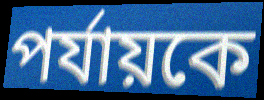
পর্যায়কে